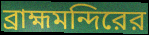
ব্রাহ্মমন্দিরের